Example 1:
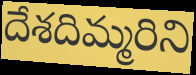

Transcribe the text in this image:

దేశదిమ్మరిని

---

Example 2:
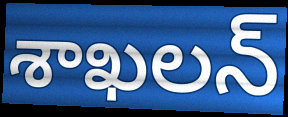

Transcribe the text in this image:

శాఖలన్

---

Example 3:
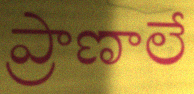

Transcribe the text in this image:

ప్రాణాలే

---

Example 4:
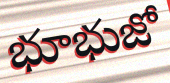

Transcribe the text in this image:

భూభుజో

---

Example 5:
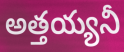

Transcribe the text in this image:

అత్తయ్యనీ